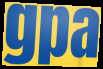
gpa